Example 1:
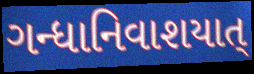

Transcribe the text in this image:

ગન્ધાનિવાશયાત્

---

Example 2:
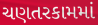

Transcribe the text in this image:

ચણતરકામમાં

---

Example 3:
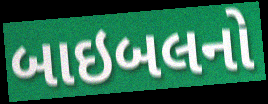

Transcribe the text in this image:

બાઇબલનો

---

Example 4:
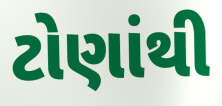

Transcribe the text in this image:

ટોણાંથી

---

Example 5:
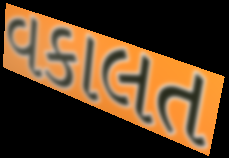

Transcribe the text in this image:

વકાલત